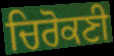
ਚਿਰੋਕਣੀ